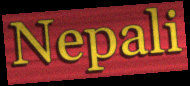
Nepali